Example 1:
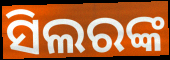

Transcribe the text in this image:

ସିଲରଙ୍କ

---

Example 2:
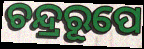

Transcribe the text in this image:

ଚନ୍ଦ୍ରରୂପେ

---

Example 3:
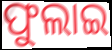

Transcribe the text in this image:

ଫୁଲାଇ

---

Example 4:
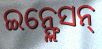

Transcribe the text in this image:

ଇନ୍ଫ୍ଲେସନ୍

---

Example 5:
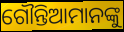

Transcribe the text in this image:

ଗୌନ୍ତିଆମାନଙ୍କୁ